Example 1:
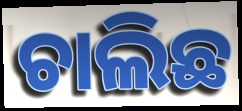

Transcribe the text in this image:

ଚାଲିଛ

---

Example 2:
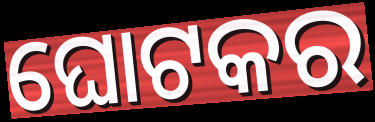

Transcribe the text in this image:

ଘୋଟକର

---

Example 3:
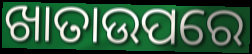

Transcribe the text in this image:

ଖାତାଉପରେ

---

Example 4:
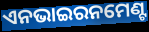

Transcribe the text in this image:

ଏନଭାଇରନମେଣ୍ଟ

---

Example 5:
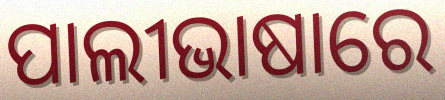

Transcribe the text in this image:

ପାଲୀଭାଷାରେ